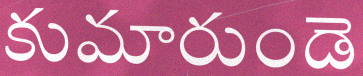
కుమారుండె